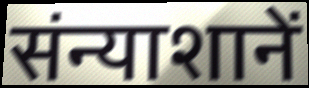
संन्याशानें